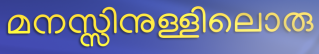
മനസ്സിനുള്ളിലൊരു